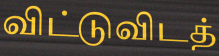
விட்டுவிடத்